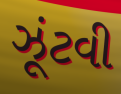
ઝૂંટવી